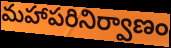
మహాపరినిర్వాణం